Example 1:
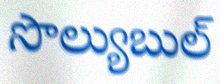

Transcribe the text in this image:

సొల్యుబుల్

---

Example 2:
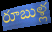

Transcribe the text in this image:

రూబుళ్ల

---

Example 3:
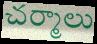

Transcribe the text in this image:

చర్మాలు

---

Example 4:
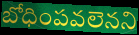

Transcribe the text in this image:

బోధింపవలెనని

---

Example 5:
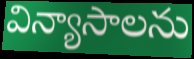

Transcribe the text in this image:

విన్యాసాలను